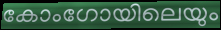
കോംഗോയിലെയും